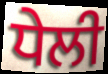
ਧੇਲੀ